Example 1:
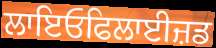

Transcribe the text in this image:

ਲਾਇਓਫਿਲਾਈਜ਼ਡ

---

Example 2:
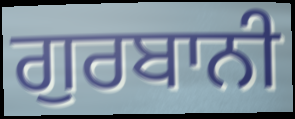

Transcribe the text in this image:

ਗੁਰਬਾਨੀ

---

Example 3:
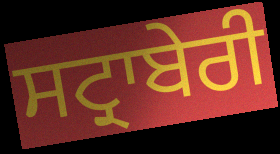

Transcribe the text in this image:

ਸਟ੍ਰਾਬੇਰੀ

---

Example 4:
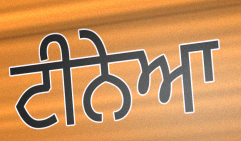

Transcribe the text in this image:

ਟੀਨੇਆ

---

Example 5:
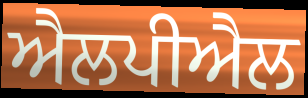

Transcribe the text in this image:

ਐਲਪੀਐਲ